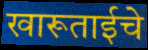
खारूताईचे